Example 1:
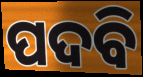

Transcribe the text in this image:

ପଦବି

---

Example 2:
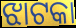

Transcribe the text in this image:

ଝାଟକା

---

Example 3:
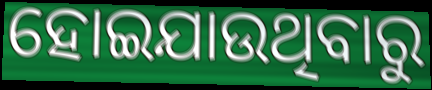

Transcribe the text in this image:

ହୋଇଯାଉଥିବାରୁ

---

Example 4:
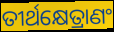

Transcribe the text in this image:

ତୀର୍ଥକ୍ଷେତ୍ରାଣଂ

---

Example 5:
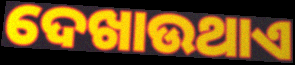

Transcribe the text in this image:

ଦେଖାଉଥାଏ